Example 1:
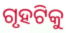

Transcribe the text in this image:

ଗୃହଟିକୁ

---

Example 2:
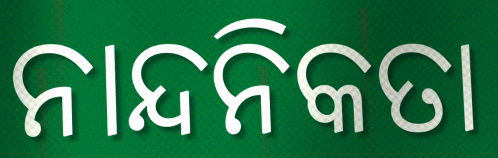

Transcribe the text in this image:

ନାନ୍ଦନିକତା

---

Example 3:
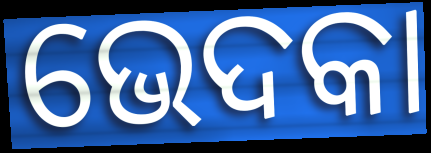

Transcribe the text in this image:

ଭେଦକା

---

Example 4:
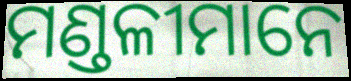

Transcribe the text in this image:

ମଣ୍ଡଳୀମାନେ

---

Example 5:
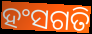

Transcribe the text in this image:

ହଂସଗତି